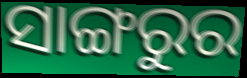
ସାଙ୍ଗରୁର